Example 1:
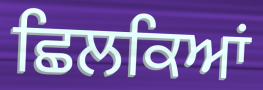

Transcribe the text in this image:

ਛਿਲਕਿਆਂ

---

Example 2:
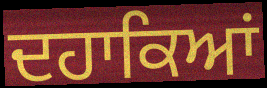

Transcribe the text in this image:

ਦਹਾਕਿਆਂ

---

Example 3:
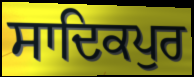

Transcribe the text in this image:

ਸਾਦਿਕਪੁਰ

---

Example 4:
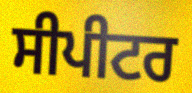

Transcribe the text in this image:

ਸੀਪੀਟਰ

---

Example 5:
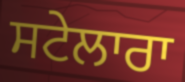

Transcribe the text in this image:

ਸਟੇਲਾਰਾ